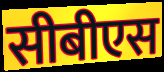
सीबीएस